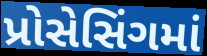
પ્રોસેસિંગમાં